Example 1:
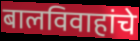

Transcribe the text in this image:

बालविवाहांचे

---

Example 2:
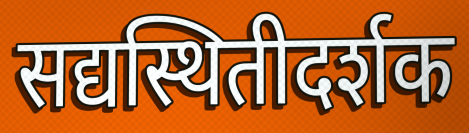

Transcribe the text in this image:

सद्यस्थितीदर्शक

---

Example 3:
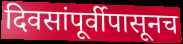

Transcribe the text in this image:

दिवसांपूर्वीपासूनच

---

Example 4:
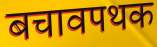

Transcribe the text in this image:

बचावपथक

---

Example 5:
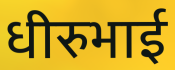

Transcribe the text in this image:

धीरुभाई